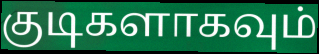
குடிகளாகவும்